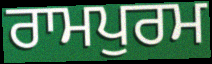
ਰਾਮਪੁਰਮ